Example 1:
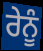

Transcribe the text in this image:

ਰੇਨੂੰ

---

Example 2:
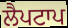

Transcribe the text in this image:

ਲੈਪਟਾਪ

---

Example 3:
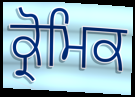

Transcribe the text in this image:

ਕ੍ਰੋਮਿਕ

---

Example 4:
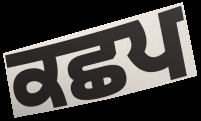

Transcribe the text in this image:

ਕਛਪ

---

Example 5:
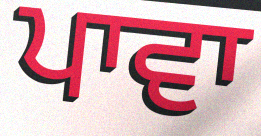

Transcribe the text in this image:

ਪਾਵਾ